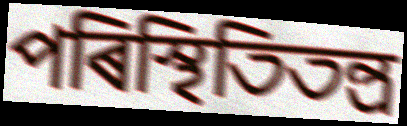
পৰিস্থিতিতন্ত্ৰ